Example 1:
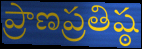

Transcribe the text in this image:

ప్రాణప్రతిష్ఠ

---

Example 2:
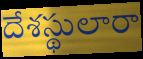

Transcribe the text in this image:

దేశస్థులారా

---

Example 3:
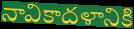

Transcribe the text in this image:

నావికాదళానికి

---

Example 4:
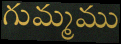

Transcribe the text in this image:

గుమ్మము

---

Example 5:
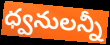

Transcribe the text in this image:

ధ్వనులన్నీ